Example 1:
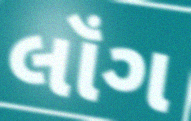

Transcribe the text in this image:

લૉંગ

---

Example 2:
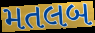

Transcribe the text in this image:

મતલબ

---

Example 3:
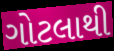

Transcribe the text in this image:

ગોટલાથી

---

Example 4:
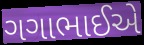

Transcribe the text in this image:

ગગાભાઈએ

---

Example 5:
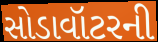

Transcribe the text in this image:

સોડાવૉટરની